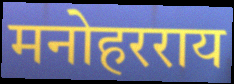
मनोहरराय